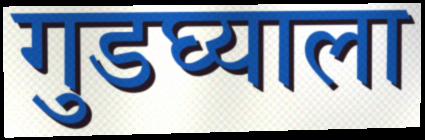
गुडघ्याला